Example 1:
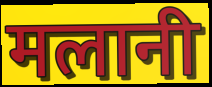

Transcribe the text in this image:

मलानी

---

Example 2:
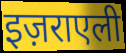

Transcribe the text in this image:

इज़राएली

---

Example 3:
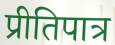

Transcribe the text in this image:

प्रीतिपात्र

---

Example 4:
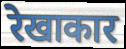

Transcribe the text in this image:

रेखाकार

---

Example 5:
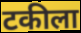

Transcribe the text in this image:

टकीला